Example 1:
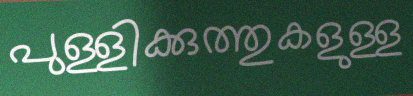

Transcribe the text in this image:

പുള്ളിക്കുത്തുകളുള്ള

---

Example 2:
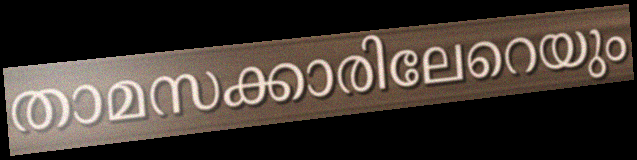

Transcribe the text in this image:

താമസക്കാരിലേറെയും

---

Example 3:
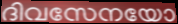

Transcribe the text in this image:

ദിവസേനയോ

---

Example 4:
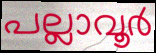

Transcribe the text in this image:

പല്ലാവൂർ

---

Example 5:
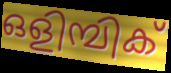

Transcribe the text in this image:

ഒളിമ്പിക്